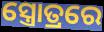
ସ୍ତ୍ରୋତ୍ରରେ